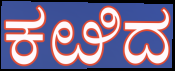
ಕೞಿದ